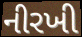
નીરખી